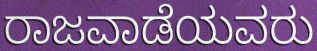
ರಾಜವಾಡೆಯವರು